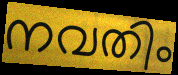
നവതിം